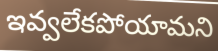
ఇవ్వలేకపోయామని